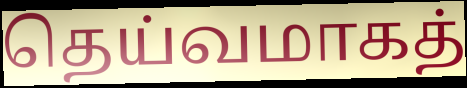
தெய்வமாகத்